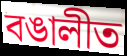
বঙালীত